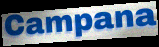
Campana